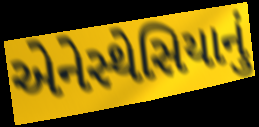
એનેસ્થેસિયાનું